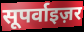
सूपर्वाइज़र